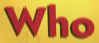
Who